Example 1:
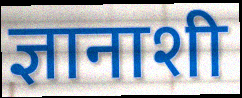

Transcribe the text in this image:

ज्ञानाशी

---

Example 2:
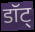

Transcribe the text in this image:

डॉट्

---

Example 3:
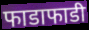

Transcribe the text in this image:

फाडाफाडी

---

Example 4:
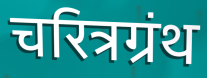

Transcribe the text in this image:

चरित्रग्रंथ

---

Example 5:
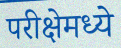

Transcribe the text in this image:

परीक्षेमध्ये